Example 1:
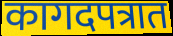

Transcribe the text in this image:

कागदपत्रात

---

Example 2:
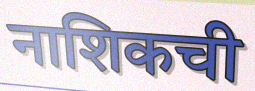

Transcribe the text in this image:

नाशिकची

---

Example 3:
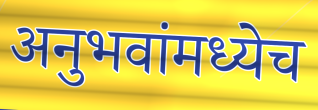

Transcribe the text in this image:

अनुभवांमध्येच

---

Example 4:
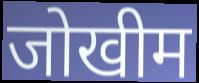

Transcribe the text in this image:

जोखीम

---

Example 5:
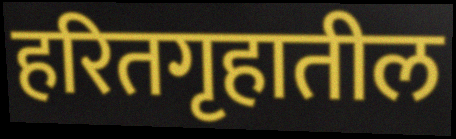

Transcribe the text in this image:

हरितगृहातील